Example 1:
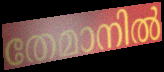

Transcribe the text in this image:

തേമാനിൽ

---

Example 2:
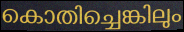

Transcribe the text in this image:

കൊതിച്ചെങ്കിലും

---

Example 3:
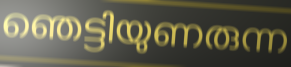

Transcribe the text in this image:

ഞെട്ടിയുണരുന്ന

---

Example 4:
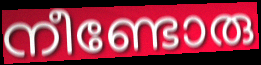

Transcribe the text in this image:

നീണ്ടോരു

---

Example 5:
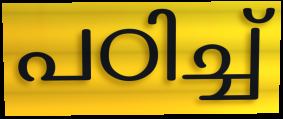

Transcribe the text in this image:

പഠിച്ച്